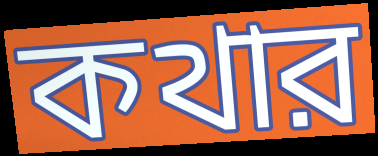
কথার